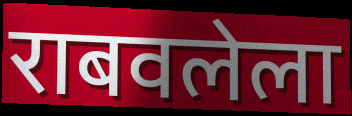
राबवलेला